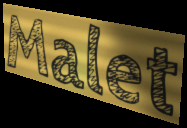
Malet